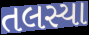
તલસ્યા